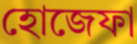
হোজেফা